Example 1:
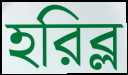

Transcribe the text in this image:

হরিব্ল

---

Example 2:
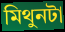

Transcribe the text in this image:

মিথুনটা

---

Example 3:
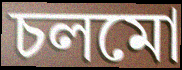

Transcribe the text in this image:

চলমো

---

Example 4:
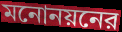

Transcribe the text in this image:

মনোনয়নের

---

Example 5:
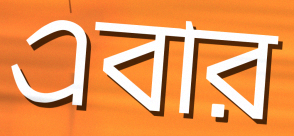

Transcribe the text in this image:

এবার